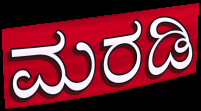
ಮರಡಿ